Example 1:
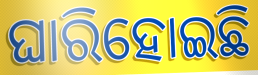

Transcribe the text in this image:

ଘାରିହୋଇଛି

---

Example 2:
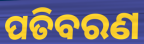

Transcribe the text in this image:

ପତିବରଣ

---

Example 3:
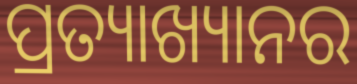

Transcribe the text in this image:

ପ୍ରତ୍ୟାଖ୍ୟାନର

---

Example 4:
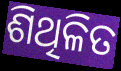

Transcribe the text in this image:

ଶିଥିଳିତ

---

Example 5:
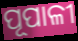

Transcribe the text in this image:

ପୂପାଳୀ